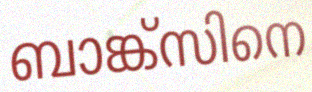
ബാങ്ക്സിനെ